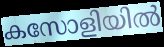
കസോളിയിൽ